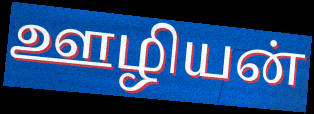
ஊழியன்